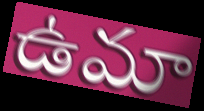
ఉమా